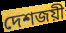
দেশজয়ী